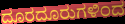
ದೂರದೂರುಗಳಿಂದ